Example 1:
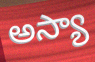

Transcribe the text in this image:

అస్యా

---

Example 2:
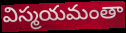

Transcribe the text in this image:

విస్మయమంతా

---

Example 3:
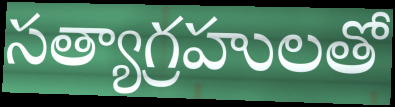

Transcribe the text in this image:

సత్యాగ్రహులతో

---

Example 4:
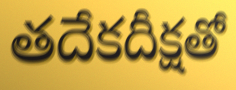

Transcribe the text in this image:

తదేకదీక్షతో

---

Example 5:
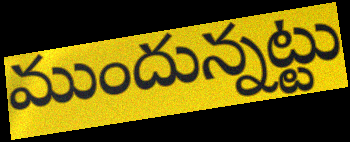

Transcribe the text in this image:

ముందున్నట్టు